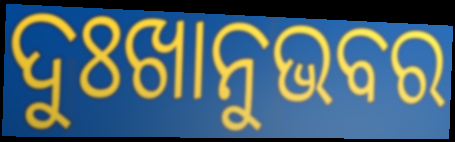
ଦୁଃଖାନୁଭବର